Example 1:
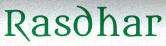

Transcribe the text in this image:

Rasdhar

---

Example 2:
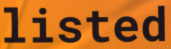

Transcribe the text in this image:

listed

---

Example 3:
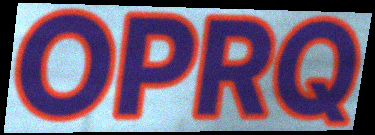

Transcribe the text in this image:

OPRQ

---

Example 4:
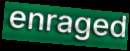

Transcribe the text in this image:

enraged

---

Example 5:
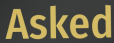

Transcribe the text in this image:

Asked